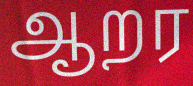
ஆறர